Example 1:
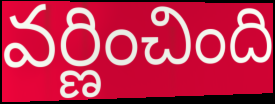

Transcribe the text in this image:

వర్ణించింది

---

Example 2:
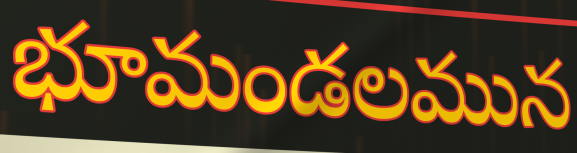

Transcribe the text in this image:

భూమండలమున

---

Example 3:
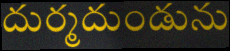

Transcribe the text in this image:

దుర్మదుండును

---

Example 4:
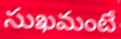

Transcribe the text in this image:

సుఖమంటే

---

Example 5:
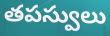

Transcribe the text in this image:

తపస్వులు